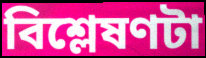
বিশ্লেষণটা